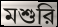
মশুরি